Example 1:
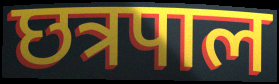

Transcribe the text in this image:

छत्रपाल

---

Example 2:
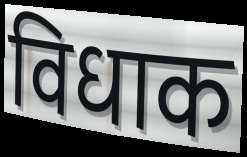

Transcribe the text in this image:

विधाक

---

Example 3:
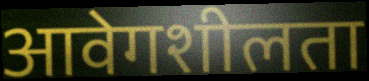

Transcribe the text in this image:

आवेगशीलता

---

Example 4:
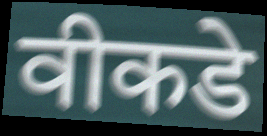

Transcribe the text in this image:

वीकडे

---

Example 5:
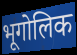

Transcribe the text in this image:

भूगोलिक